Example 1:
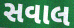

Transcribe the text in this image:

સવાલ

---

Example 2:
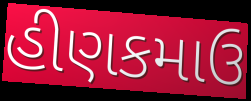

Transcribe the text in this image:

હીણકમાઉ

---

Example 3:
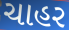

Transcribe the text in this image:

ચાહર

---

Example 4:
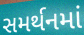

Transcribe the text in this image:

સમર્થનમાં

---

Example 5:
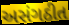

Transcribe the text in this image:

અસંગઠીત